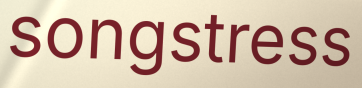
songstress